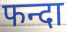
फन्दा